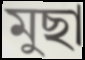
মুছা